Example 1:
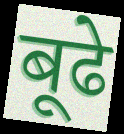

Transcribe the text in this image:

बूढे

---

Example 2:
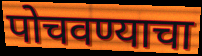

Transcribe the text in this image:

पोचवण्याचा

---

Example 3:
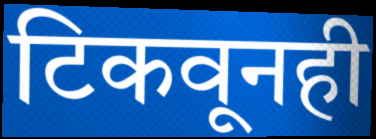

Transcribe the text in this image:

टिकवूनही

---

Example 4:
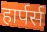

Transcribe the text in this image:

हार्पर्स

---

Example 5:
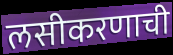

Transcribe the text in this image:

लसीकरणाची